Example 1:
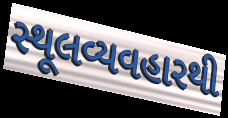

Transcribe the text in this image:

સ્થૂલવ્યવહારથી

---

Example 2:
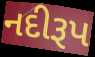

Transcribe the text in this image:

નદીરૂપ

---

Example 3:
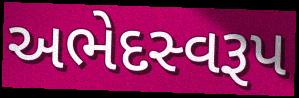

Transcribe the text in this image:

અભેદસ્વરૂપ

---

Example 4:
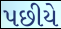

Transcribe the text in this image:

પછીયે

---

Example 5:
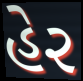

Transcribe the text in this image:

હેર